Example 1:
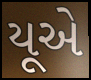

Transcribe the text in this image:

યૂએ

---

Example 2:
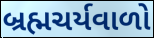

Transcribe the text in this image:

બ્રહ્મચર્યવાળો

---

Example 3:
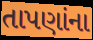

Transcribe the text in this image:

તાપણાંના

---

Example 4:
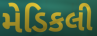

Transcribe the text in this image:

મેડિકલી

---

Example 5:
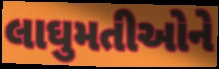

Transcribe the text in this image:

લાઘુમતીઓને